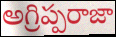
అగ్రిప్పరాజా